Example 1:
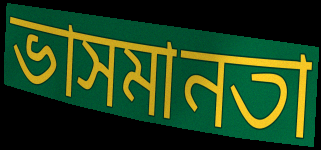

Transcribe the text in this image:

ভাসমানতা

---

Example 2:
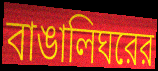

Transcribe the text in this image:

বাঙালিঘরের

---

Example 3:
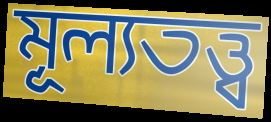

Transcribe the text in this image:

মূল্যতত্ত্ব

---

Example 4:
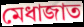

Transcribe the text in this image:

মেধাজাত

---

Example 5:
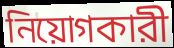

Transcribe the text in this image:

নিয়োগকারী